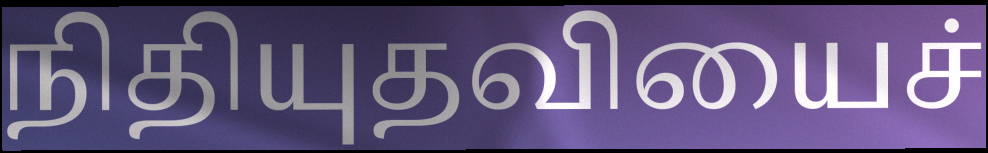
நிதியுதவியைச்